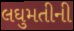
લઘુમતીની